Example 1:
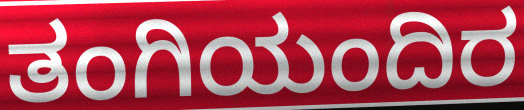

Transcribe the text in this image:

ತಂಗಿಯಂದಿರ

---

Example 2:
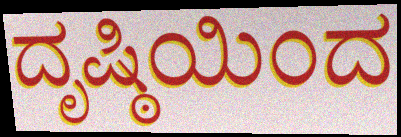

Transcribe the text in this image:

ದೃಷ್ಠಿಯಿಂದ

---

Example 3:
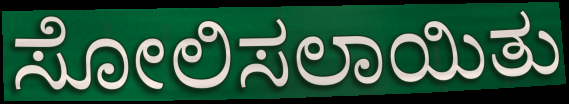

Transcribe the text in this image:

ಸೋಲಿಸಲಾಯಿತು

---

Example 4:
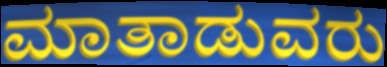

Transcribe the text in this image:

ಮಾತಾಡುವರು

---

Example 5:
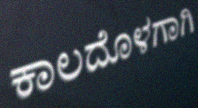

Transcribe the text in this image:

ಕಾಲದೊಳಗಾಗಿ